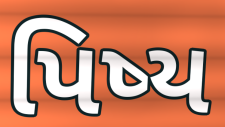
પિષ્ય